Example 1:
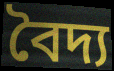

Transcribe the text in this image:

বৈদ্য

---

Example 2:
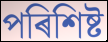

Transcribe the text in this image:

পৰিশিষ্ট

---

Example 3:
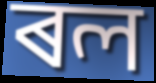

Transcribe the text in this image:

ৰল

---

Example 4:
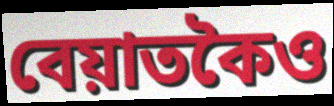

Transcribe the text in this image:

বেয়াতকৈও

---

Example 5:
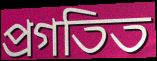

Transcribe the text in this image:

প্ৰগতিত